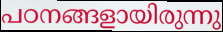
പഠനങ്ങളായിരുന്നു